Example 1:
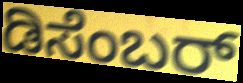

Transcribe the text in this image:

ಡಿಸೆಂಬರ್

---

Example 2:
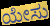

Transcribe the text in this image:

ಯೇಸು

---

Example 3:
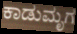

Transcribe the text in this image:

ಕಾಡುಮೃಗ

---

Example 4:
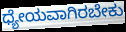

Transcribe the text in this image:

ಧ್ಯೇಯವಾಗಿರಬೇಕು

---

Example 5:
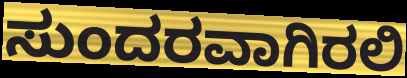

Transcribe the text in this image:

ಸುಂದರವಾಗಿರಲಿ